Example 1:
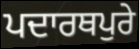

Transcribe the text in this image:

ਪਦਾਰਥਪੁਰੇ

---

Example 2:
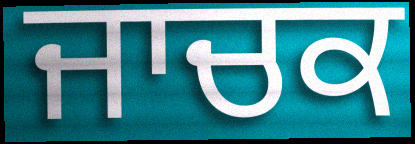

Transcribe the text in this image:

ਜਾਚਕ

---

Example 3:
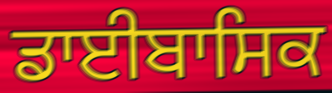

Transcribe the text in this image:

ਡਾਈਬਾਸਿਕ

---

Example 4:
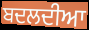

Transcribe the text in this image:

ਬਦਲਦੀਆ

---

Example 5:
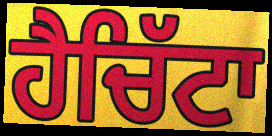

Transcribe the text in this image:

ਹੈਚਿੱਟਾ